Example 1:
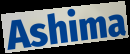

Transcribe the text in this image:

Ashima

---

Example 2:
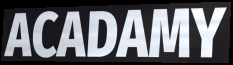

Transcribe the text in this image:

ACADAMY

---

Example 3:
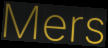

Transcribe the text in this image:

Mers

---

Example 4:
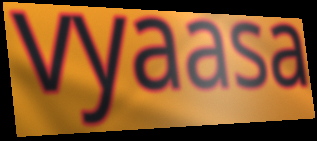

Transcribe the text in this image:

vyaasa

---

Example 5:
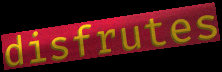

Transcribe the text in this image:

disfrutes